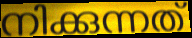
നിക്കുന്നത്